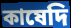
কাষেদি